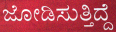
ಜೋಡಿಸುತ್ತಿದ್ದೆ